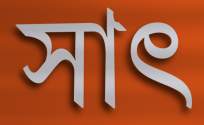
সাৎ